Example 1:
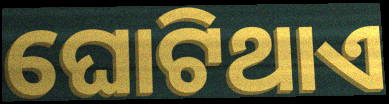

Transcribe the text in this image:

ଘୋଟିଥାଏ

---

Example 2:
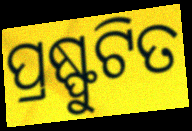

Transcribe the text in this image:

ପ୍ରଷ୍ଫୁଟିତ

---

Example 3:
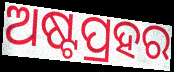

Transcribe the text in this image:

ଅଷ୍ଟପ୍ରହର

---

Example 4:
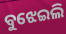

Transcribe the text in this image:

ବୁଝେଇଲି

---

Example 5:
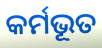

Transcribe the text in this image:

କର୍ମଭୂତ